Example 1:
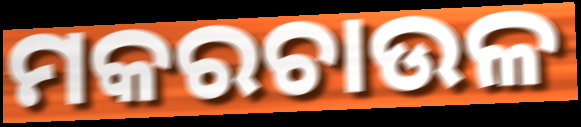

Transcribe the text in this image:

ମକରଚାଉଳ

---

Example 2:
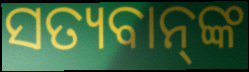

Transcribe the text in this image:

ସତ୍ୟବାନ୍‌ଙ୍କ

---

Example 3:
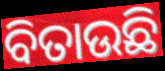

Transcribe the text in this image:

ବିତାଉଛି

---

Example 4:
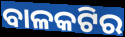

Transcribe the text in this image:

ବାଳକଟିର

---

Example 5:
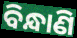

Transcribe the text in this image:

ବିନ୍ଧାଣି